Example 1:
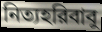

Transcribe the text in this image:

নিত্যহরিবাবু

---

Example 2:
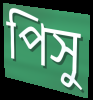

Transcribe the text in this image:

পিসু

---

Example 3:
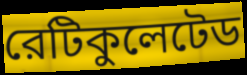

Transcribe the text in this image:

রেটিকুলেটেড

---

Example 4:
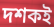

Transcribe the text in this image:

দশকই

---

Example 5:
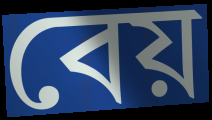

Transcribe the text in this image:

বেয়